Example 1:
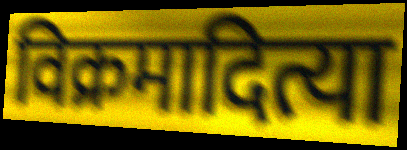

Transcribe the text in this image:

विक्रमादित्या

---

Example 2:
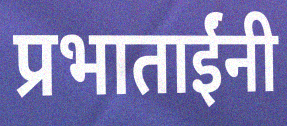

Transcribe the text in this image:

प्रभाताईंनी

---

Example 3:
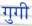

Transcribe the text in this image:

गुगी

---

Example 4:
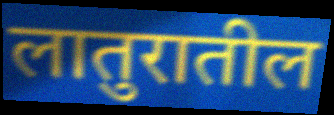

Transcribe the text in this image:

लातुरातील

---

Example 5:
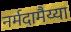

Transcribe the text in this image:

नर्मदामैय्या